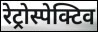
रेट्रोस्पेक्टिव